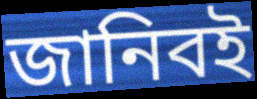
জানিবই